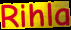
Rihla